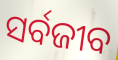
ସର୍ବଜୀବ